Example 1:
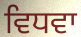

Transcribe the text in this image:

ਵਿਧਵਾ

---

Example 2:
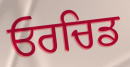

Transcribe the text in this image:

ਓਰਚਿਡ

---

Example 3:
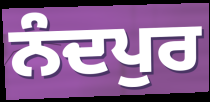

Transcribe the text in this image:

ਨੰਦਪੁਰ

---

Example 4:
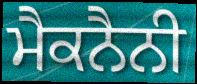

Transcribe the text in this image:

ਮੈਕਨੈਨੀ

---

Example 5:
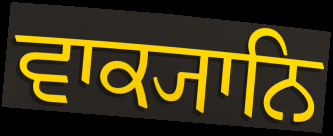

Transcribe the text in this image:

ਵਾਕ੍ਯਾਨਿ